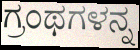
ಗ್ರಂಥಗಳನ್ನ